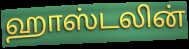
ஹாஸ்டலின்